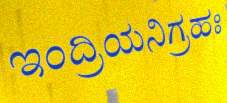
ಇಂದ್ರಿಯನಿಗ್ರಹಃ